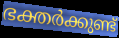
ഭക്തർക്കുണ്ട്